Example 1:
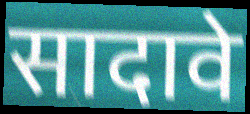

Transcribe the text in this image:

सादावे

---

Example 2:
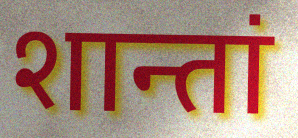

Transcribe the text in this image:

शान्तां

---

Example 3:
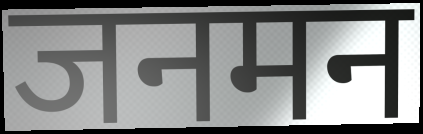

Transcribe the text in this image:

जनमन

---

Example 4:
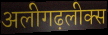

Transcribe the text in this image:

अलीगढ़लीक्स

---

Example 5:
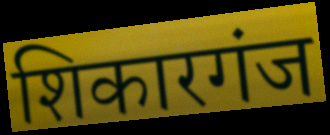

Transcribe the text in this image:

शिकारगंज